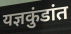
यज्ञकुंडांत